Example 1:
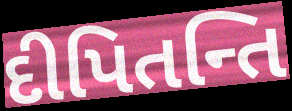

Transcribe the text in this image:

દીપિતન્તિ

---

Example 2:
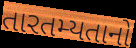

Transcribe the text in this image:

તારતમ્યતાનો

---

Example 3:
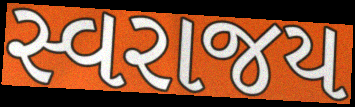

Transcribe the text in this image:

સ્વરાજય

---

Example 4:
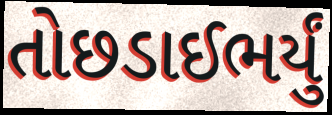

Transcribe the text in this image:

તોછડાઈભર્યું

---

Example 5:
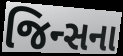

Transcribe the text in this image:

જિન્સના